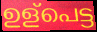
ഉള്പെട്ട